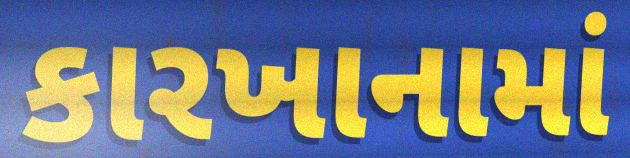
કારખાનામાં